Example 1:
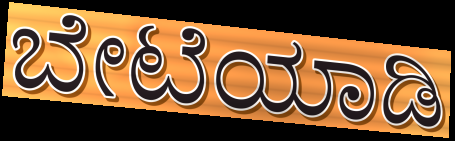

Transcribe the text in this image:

ಬೇಟೆಯಾಡಿ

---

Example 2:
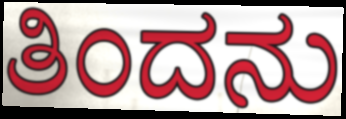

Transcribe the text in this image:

ತಿಂದನು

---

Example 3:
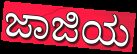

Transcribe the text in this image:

ಜಾಜಿಯ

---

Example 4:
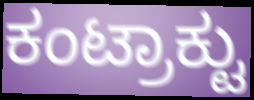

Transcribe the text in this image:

ಕಂಟ್ರಾಕ್ಟು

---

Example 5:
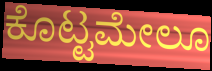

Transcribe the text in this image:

ಕೊಟ್ಟಮೇಲೂ